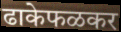
ढाकेफळकर